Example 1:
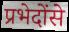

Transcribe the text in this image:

प्रभेदोंसे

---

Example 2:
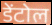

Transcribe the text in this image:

डेंटोल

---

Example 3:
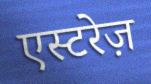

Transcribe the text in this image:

एस्टरेज़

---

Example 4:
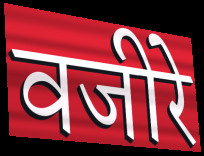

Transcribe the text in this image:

वजीरे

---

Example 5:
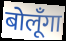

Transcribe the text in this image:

बोलूँगा